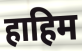
हाहिम